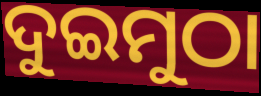
ଦୁଇମୁଠା